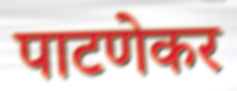
पाटणेकर